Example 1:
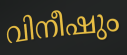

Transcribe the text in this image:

വിനീഷും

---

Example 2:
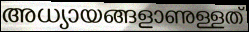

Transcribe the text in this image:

അധ്യായങ്ങളാണുള്ളത്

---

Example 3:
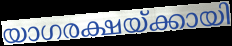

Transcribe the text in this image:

യാഗരക്ഷയ്ക്കായി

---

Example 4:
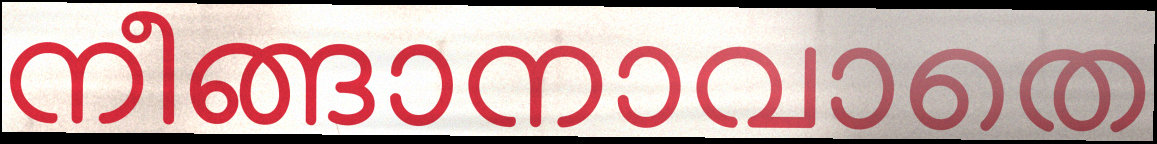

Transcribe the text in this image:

നീങ്ങാനാവാതെ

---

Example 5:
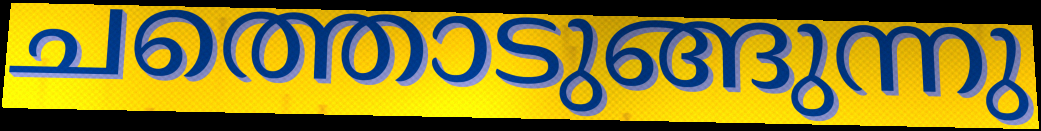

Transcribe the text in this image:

ചത്തൊടുങ്ങുന്നു